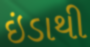
ઇંડાથી